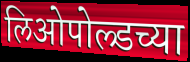
लिओपोल्डच्या